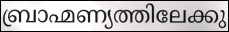
ബ്രാഹ്മണ്യത്തിലേക്കു